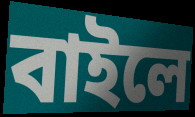
বাইলে